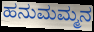
ಹನುಮಮ್ಮನ